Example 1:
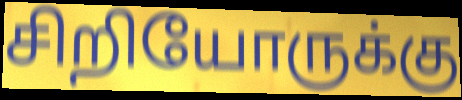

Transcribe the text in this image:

சிறியோருக்கு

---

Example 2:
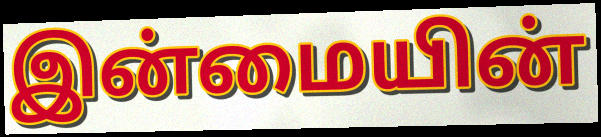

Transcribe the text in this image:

இன்மையின்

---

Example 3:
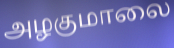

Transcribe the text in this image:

அழகுமாலை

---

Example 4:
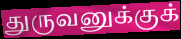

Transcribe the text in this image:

துருவனுக்குக்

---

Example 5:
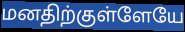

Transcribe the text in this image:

மனதிற்குள்ளேயே